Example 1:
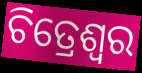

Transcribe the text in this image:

ଚିତ୍ରେଶ୍ୱର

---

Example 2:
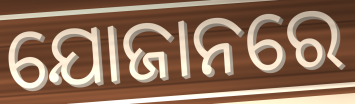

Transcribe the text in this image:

ଯୋଜାନରେ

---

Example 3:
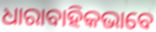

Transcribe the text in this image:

ଧାରାବାହିକଭାବେ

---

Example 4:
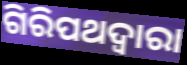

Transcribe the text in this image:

ଗିରିପଥଦ୍ୱାରା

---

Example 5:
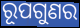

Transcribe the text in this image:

ରୂପଗୁଣର